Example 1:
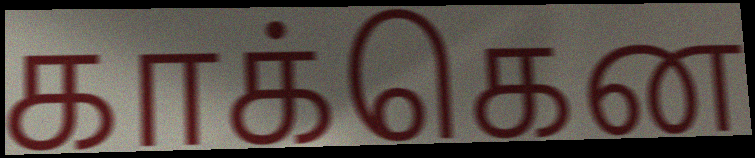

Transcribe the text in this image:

காக்கென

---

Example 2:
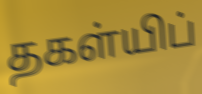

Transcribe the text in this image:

தகள்யிப்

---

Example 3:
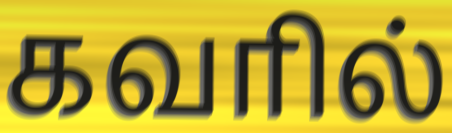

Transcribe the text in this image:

கவரில்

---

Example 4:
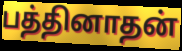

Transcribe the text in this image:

பத்தினாதன்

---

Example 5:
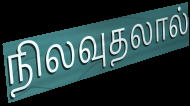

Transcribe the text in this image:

நிலவுதலால்